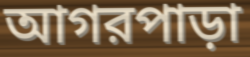
আগরপাড়া